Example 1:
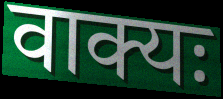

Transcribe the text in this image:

वाक्यः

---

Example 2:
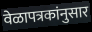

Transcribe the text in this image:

वेळापत्रकांनुसार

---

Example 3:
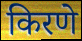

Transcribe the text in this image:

किरणे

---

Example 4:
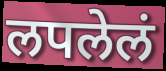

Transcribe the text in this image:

लपलेलं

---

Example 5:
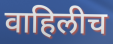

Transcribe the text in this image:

वाहिलीच